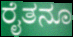
ರೈತನೂ